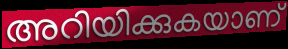
അറിയിക്കുകയാണ്